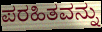
ಪರಹಿತವನ್ನು